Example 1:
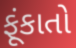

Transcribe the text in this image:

ફૂંકાતો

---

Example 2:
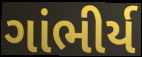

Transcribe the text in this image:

ગાંભીર્ય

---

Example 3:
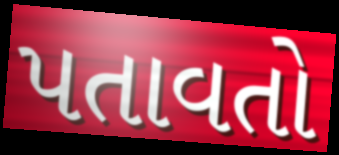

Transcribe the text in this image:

પતાવતો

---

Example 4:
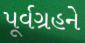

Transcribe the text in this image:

પૂર્વગ્રહને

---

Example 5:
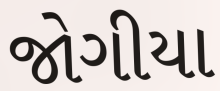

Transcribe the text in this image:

જોગીયા